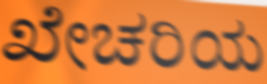
ಖೇಚರಿಯ